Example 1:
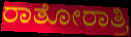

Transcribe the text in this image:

ರಾತೋರಾತ್ರಿ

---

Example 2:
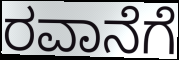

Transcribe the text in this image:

ರವಾನೆಗೆ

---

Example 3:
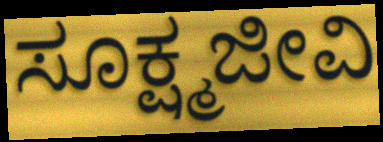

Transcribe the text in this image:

ಸೂಕ್ಷ್ಮಜೀವಿ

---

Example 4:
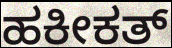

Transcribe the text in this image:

ಹಕೀಕತ್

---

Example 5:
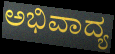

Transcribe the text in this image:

ಅಭಿವಾದ್ಯ